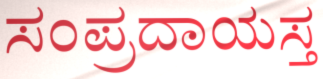
ಸಂಪ್ರದಾಯಸ್ತ